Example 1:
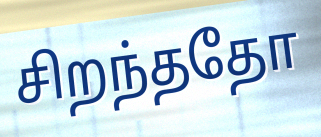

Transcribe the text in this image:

சிறந்ததோ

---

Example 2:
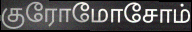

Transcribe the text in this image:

குரோமோசோம்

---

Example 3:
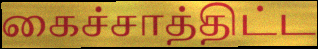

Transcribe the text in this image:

கைச்சாத்திட்ட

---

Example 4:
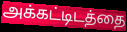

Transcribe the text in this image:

அக்கட்டிடத்தை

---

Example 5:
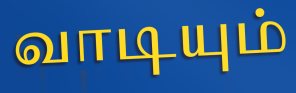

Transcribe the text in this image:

வாடியும்